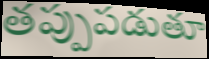
తప్పుపడుతూ